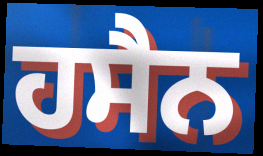
ਹਸੈਨ